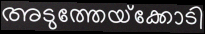
അടുത്തേയ്‌ക്കോടി